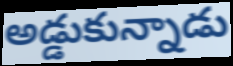
అడ్డుకున్నాడు